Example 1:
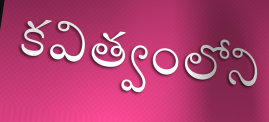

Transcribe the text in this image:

కవిత్వంలోని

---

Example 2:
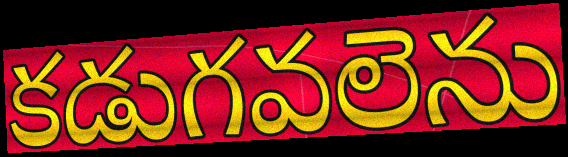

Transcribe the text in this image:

కడుగవలెను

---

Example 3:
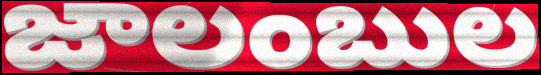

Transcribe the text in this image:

జాలంబుల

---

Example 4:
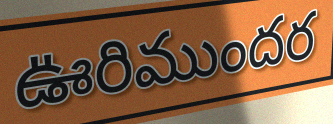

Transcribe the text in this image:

ఊరిముందర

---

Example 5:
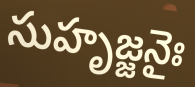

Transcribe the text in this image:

సుహృజ్జనైః